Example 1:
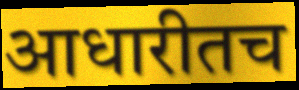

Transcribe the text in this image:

आधारीतच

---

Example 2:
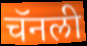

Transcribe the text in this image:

चॅनली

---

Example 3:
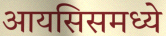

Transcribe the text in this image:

आयसिसमध्ये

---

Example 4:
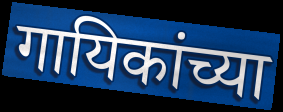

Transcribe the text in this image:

गायिकांच्या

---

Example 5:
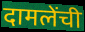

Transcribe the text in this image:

दामलेंची